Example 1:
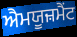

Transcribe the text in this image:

ਐਮਯੂਜ਼ਮੈਂਟ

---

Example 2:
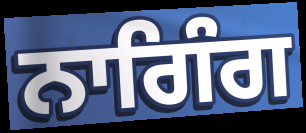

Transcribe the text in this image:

ਨਾਗਿੰਗ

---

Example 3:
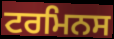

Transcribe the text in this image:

ਟਰਮਿਨਸ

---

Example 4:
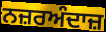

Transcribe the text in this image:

ਨਜ਼ਰਅੰਦਾਜ਼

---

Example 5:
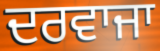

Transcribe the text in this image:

ਦਰਵਾਜਾ